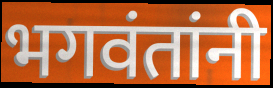
भगवंतांनी